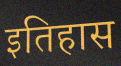
इतिहास